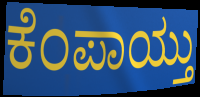
ಕೆಂಪಾಯ್ತು